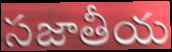
సజాతీయ